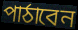
পাঠাবেন